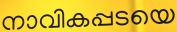
നാവികപ്പടയെ